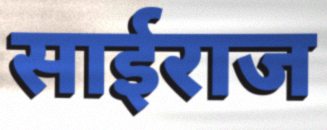
साईराज